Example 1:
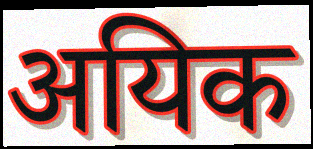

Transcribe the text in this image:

अयिक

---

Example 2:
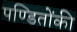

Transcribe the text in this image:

पण्डितोंकी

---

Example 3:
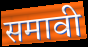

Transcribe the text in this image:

समावी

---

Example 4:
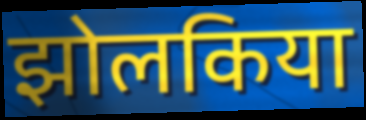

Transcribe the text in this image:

झोलकिया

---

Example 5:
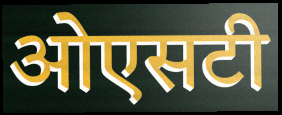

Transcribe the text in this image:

ओएसटी